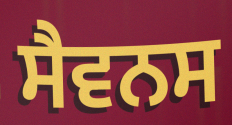
ਸੈਵਨਸ